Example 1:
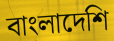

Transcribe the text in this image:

বাংলাদেশি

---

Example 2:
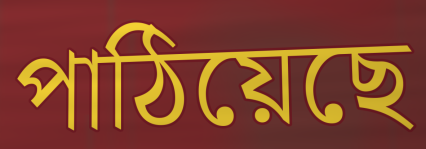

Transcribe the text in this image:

পাঠিয়েছে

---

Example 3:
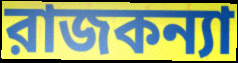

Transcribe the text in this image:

রাজকন্যা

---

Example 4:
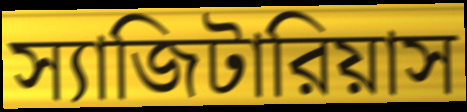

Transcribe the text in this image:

স্যাজিটারিয়াস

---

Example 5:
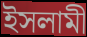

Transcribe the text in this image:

ইসলামী